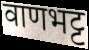
वाणभट्ट